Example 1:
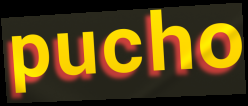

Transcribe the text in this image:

pucho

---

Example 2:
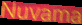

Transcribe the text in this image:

Nuvama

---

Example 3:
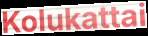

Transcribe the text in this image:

Kolukattai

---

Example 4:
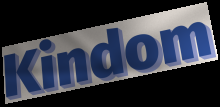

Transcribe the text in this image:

Kindom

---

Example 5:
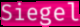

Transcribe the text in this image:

Siegel